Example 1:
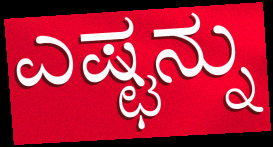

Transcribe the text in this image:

ಎಷ್ಟನ್ನು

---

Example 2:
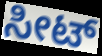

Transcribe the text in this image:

ಸೀಟ್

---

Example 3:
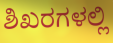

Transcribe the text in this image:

ಶಿಖರಗಳಲ್ಲಿ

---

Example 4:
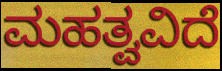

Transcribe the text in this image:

ಮಹತ್ವವಿದೆ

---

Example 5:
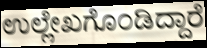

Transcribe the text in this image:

ಉಲ್ಲೇಖಗೊಂಡಿದ್ದಾರೆ